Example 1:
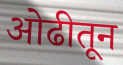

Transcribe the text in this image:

ओढीतून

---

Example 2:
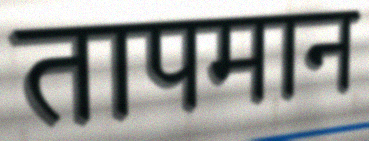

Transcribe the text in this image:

तापमान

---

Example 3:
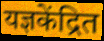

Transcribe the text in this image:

यज्ञकेंद्रित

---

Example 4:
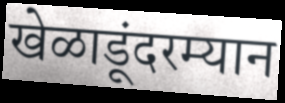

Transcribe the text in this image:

खेळाडूंदरम्यान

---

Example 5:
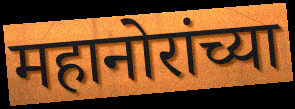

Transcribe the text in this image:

महानोरांच्या